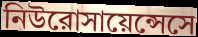
নিউরোসায়েন্সেসে